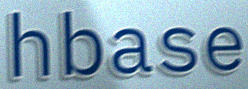
hbase